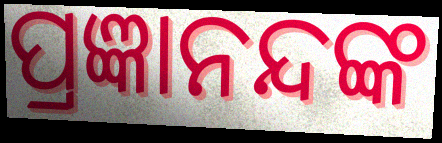
ପ୍ରଜ୍ଞାନନ୍ଦଙ୍କ